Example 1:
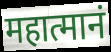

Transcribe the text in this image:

महात्मानं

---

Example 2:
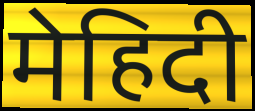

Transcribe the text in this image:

मेहिदी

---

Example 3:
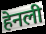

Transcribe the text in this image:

हेनली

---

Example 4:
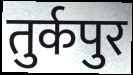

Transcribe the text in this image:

तुर्कपुर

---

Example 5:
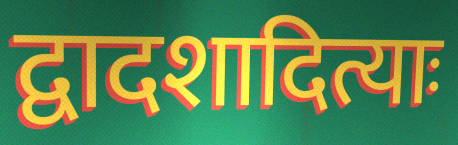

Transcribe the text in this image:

द्वादशादित्याः